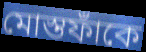
মোস্তফাঁকে